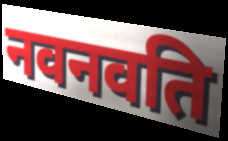
नवनवति